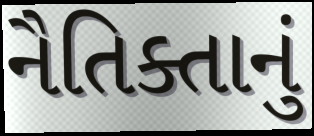
નૈતિક્તાનું